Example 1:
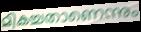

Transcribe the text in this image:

മികച്ചതാണെന്നും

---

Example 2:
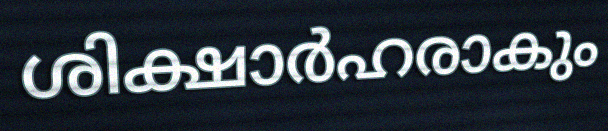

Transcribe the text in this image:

ശിക്ഷാർഹരാകും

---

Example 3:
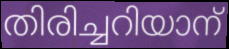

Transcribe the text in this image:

തിരിച്ചറിയാന്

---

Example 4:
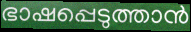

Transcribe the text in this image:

ഭാഷപ്പെടുത്താൻ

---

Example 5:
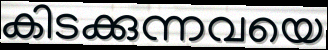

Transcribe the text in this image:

കിടക്കുന്നവയെ